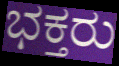
ಭಕ್ತರು